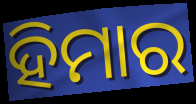
ହିମାର